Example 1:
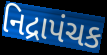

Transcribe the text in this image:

નિદ્રાપંચક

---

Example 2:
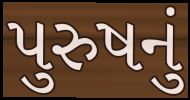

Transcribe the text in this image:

પુરુષનું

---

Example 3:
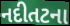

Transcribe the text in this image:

નદીતટના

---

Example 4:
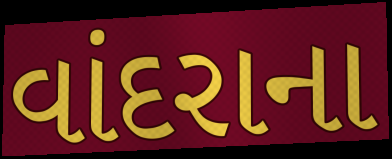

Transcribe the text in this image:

વાંદરાના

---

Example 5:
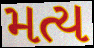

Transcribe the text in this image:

મત્ય